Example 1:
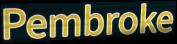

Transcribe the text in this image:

Pembroke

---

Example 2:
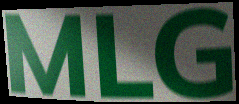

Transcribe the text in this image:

MLG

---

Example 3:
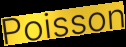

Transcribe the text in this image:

Poisson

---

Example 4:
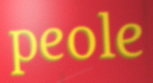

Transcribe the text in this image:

peole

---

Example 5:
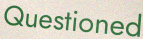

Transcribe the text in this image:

Questioned